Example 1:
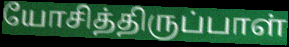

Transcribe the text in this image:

யோசித்திருப்பாள்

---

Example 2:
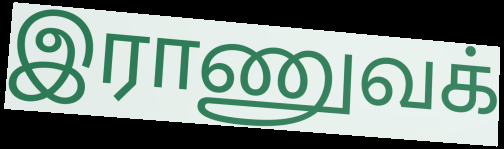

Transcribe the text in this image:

இராணுவக்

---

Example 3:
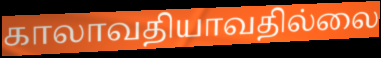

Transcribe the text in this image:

காலாவதியாவதில்லை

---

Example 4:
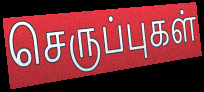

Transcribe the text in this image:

செருப்புகள்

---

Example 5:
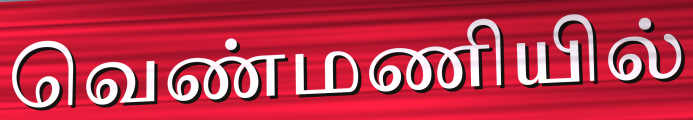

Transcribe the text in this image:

வெண்மணியில்